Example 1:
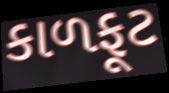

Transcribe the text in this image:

કાળફૂટ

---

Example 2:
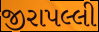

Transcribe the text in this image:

જીરાપલ્લી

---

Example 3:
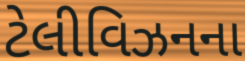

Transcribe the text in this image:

ટેલીવિઝનના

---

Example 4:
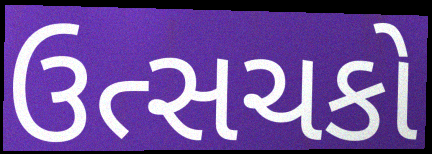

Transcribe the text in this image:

ઉત્સચકો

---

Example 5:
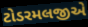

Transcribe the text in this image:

ટોડરમલજીએ